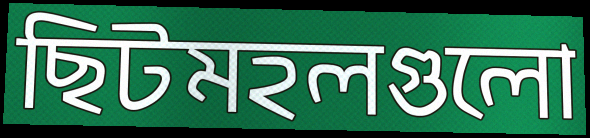
ছিটমহলগুলো